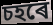
চহৰে